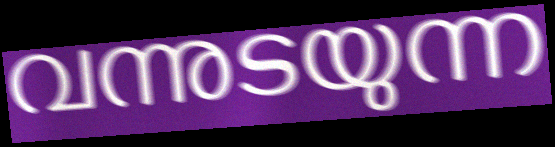
വന്നുടയുന്ന